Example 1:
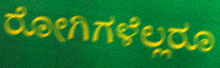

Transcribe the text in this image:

ರೋಗಿಗಳೆಲ್ಲರೂ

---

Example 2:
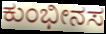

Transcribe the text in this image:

ಕುಂಭೀನಸ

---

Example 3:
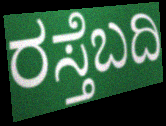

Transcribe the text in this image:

ರಸ್ತೆಬದಿ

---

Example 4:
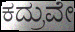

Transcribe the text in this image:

ಕದ್ರುವೇ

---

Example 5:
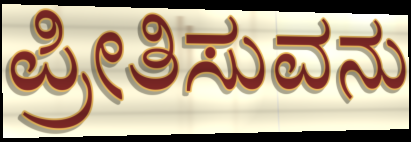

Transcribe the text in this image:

ಪ್ರೀತಿಸುವನು